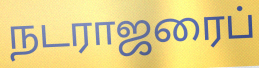
நடராஜரைப்